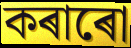
কৰাৰো